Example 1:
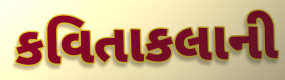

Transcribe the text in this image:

કવિતાકલાની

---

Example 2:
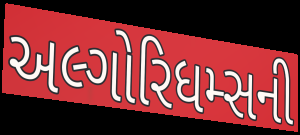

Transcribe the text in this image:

અલ્ગોરિધમ્સની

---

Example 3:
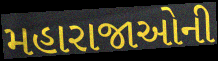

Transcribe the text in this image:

મહારાજાઓની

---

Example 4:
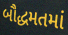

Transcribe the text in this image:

બૌદ્ધમતમાં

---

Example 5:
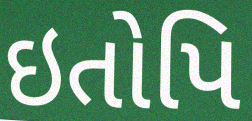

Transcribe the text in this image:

ઇતોપિ